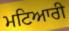
ਮਟਿਆਰੀ